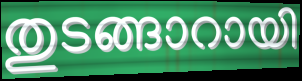
തുടങ്ങാറായി